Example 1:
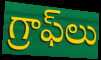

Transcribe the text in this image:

గ్రాఫ్‌లు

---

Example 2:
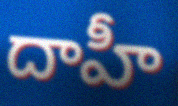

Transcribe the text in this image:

దాహీ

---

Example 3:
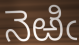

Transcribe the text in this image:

నెఱిఁ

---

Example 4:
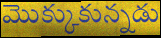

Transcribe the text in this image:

మొక్కుకున్నడు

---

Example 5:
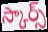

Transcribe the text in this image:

స్కార్స్